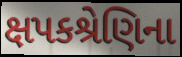
ક્ષપકશ્રેણિના